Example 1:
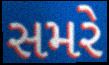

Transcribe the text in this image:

સમરે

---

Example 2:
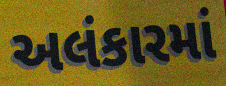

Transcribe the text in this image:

અલંકારમાં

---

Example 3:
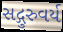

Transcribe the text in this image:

સદ્ગુરુવર્ય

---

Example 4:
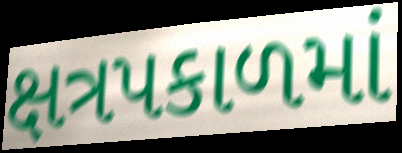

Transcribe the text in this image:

ક્ષત્રપકાળમાં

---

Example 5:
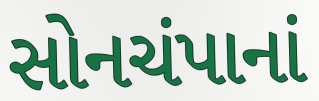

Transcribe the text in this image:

સોનચંપાનાં